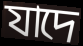
যাদে